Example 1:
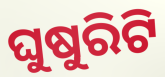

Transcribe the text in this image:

ଘୁଷୁରିଟି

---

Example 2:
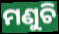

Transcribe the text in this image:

ମଣୁଚି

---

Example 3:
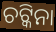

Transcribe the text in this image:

ଚଟ୍କିନା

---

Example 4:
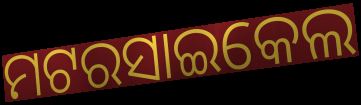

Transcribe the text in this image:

ମଟରସାଇକେଲ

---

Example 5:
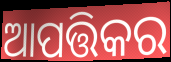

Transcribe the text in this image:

ଆପତ୍ତିକର